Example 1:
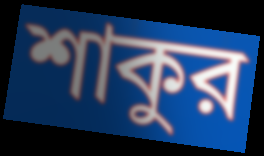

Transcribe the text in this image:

শাকুর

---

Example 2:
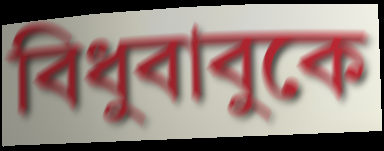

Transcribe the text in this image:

বিধুবাবুকে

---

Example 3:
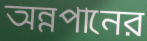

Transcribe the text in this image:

অন্নপানের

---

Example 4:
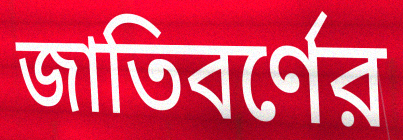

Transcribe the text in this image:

জাতিবর্ণের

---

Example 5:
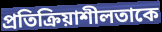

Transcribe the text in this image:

প্রতিক্রিয়াশীলতাকে